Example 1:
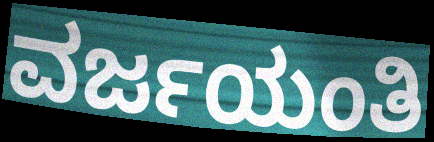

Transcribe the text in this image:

ವರ್ಜಯಂತಿ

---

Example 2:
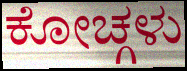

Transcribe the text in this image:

ಕೋಚ್ಗಳು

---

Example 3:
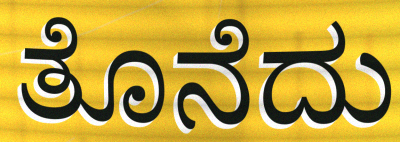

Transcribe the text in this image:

ತೊನೆದು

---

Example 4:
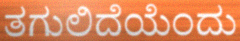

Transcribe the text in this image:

ತಗುಲಿದೆಯೆಂದು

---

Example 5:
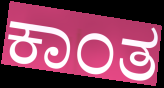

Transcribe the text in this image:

ಕಾಂತ